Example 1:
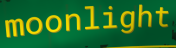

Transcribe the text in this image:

moonlight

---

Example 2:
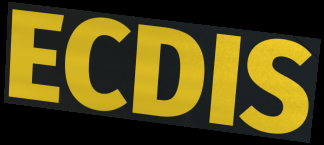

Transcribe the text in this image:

ECDIS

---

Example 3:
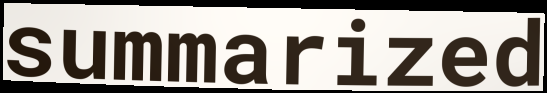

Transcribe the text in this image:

summarized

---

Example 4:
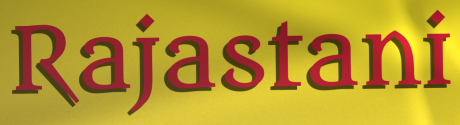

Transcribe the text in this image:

Rajastani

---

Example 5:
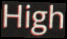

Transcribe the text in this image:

High